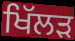
ਖਿੱਲੜ